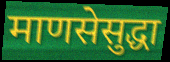
माणसेसुद्धा